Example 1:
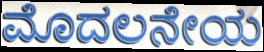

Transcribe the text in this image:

ಮೊದಲನೇಯ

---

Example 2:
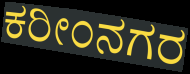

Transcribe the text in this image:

ಕರೀಂನಗರ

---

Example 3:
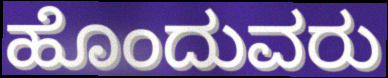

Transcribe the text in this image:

ಹೊಂದುವರು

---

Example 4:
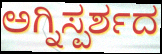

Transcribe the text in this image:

ಅಗ್ನಿಸ್ಪರ್ಶದ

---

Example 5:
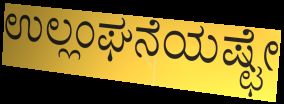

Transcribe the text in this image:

ಉಲ್ಲಂಘನೆಯಷ್ಟೇ